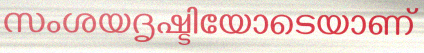
സംശയദൃഷ്ടിയോടെയാണ്